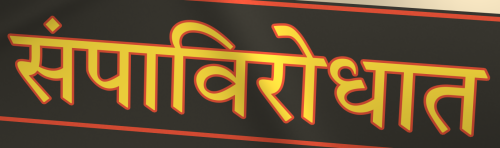
संपाविरोधात